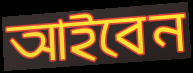
আইবেন